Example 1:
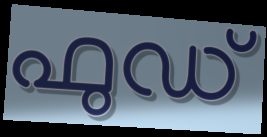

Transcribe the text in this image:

ഫുഡ്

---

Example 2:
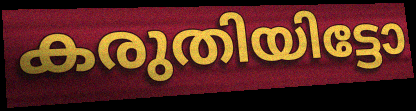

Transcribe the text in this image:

കരുതിയിട്ടോ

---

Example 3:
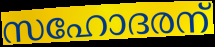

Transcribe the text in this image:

സഹോദരന്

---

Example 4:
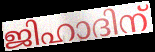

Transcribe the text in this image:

ജിഹാദിന്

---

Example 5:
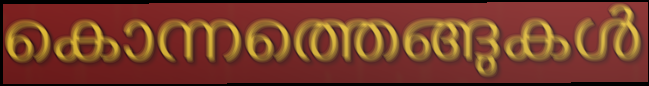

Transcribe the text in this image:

കൊന്നത്തെങ്ങുകൾ